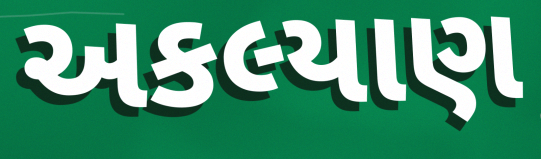
અકલ્યાણ